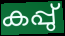
കപ്പു്